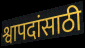
श्वापदांसाठी